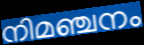
നിമഞ്ചനം